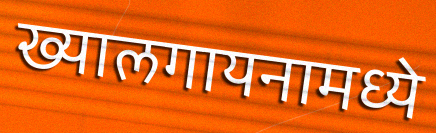
ख्यालगायनामध्ये